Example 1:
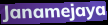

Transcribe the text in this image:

Janamejaya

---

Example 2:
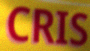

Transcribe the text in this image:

CRIS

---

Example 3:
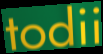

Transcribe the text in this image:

todii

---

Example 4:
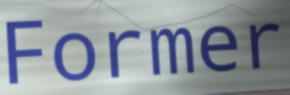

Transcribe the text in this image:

Former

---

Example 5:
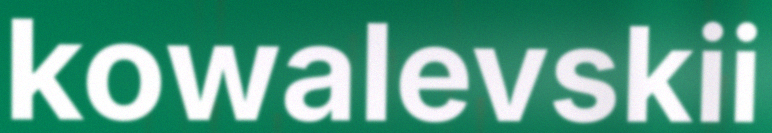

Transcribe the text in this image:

kowalevskii